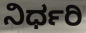
ನಿರ್ಧರಿ